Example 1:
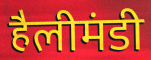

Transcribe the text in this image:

हैलीमंडी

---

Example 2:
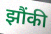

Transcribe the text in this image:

झौंकी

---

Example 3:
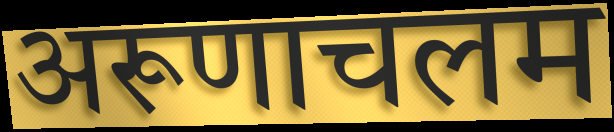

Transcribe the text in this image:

अरूणाचलम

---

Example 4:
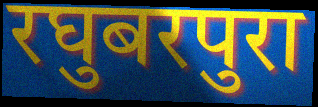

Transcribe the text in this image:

रघुबरपुरा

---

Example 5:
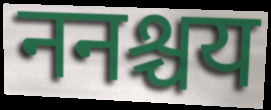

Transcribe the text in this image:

ननश्चय